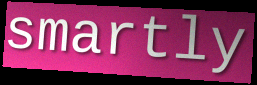
smartly